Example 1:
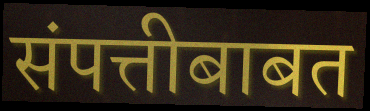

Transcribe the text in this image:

संपत्तीबाबत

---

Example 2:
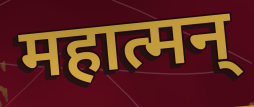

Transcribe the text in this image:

महात्मन्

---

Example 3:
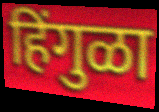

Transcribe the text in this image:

हिंगुळा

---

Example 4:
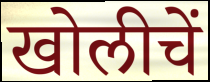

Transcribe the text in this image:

खोलीचें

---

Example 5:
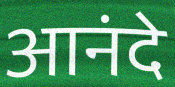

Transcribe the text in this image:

आनंदे